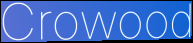
Crowood